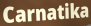
Carnatika